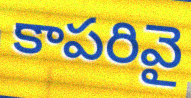
కాపరివై